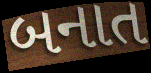
બનાત